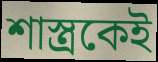
শাস্ত্রকেই